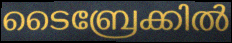
ടൈബ്രേക്കിൽ